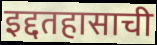
इद्दतहासाची